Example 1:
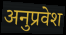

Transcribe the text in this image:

अनुप्रवेश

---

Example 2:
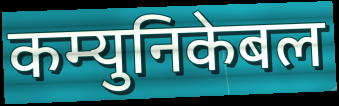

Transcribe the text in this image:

कम्युनिकेबल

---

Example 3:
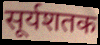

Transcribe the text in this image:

सूर्यशतक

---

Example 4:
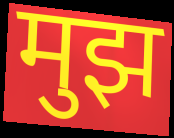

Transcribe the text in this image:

मुझ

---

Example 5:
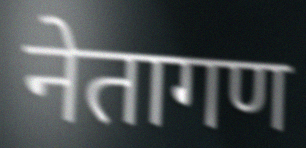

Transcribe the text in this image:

नेतागण